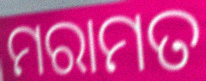
ମରାମତ